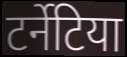
टर्नेटिया